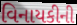
વિનાયકીની